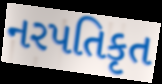
નરપતિકૃત